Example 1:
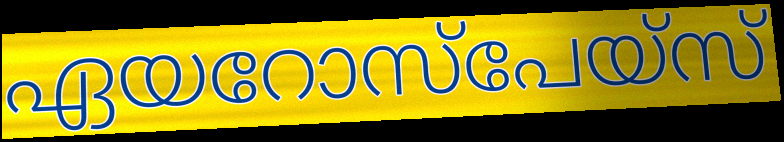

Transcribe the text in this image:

ഏയറോസ്പേയ്സ്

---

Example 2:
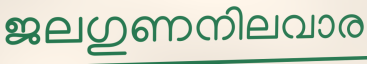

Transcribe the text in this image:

ജലഗുണനിലവാര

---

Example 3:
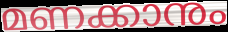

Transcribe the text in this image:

മണക്കാനും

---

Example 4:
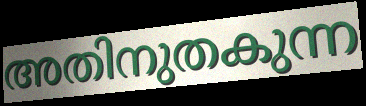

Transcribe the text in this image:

അതിനുതകുന്ന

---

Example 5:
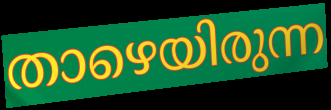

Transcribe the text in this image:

താഴെയിരുന്ന